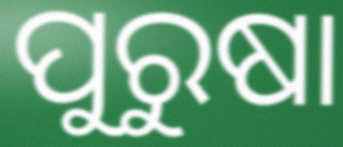
ପୁରୁଷା